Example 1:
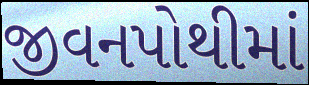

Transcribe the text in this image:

જીવનપોથીમાં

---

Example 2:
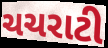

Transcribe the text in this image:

ચચરાટી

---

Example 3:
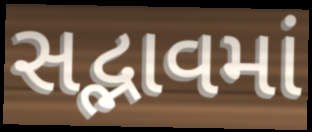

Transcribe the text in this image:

સદ્ભાવમાં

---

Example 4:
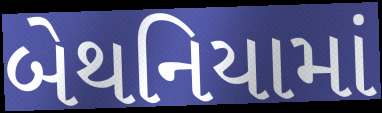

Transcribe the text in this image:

બેથનિયામાં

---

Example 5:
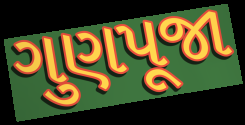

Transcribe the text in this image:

ગુણપૂજા